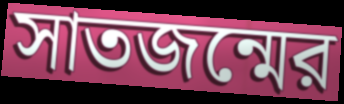
সাতজন্মের